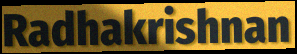
Radhakrishnan